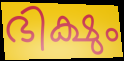
ഭിക്ഷും